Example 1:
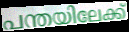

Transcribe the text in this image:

പന്തയിലേക്ക്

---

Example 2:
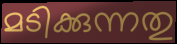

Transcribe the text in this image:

മടിക്കുന്നതു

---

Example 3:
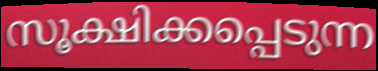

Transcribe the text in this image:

സൂക്ഷിക്കപ്പെടുന്ന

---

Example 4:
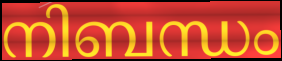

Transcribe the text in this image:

നിബന്ധം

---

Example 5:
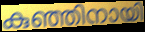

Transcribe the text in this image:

കുഞ്ഞിനായി